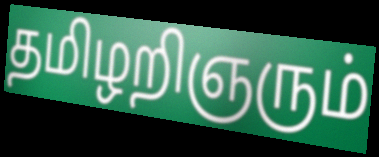
தமிழறிஞரும்